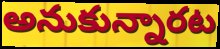
అనుకున్నారట